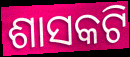
ଶାସକଟି